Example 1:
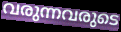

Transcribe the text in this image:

വരുന്നവരുടെ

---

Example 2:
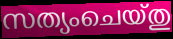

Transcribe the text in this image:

സത്യംചെയ്തു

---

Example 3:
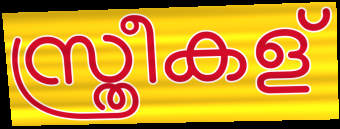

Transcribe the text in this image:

സ്ത്രീകള്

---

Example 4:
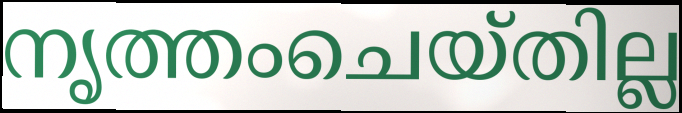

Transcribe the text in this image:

നൃത്തംചെയ്തില്ല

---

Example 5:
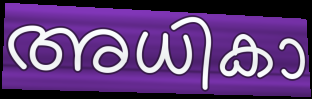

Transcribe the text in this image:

അധികാ